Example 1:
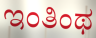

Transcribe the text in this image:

ಇಂತಿಂಥ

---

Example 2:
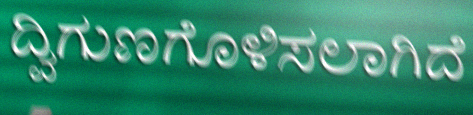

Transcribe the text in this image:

ದ್ವಿಗುಣಗೊಳಿಸಲಾಗಿದೆ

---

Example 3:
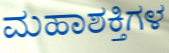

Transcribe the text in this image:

ಮಹಾಶಕ್ತಿಗಳ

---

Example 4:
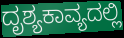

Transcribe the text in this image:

ದೃಶ್ಯಕಾವ್ಯದಲ್ಲಿ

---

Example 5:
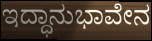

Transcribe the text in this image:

ಇದ್ಧಾನುಭಾವೇನ